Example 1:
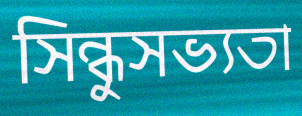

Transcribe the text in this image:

সিন্ধুসভ্যতা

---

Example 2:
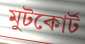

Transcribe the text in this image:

মুটকোর্ট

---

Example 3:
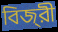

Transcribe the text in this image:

বিজ্‌রী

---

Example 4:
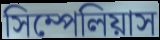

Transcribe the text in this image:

সিম্পেলিয়াস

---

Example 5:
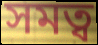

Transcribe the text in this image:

সমত্ব